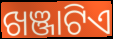
ଖଞ୍ଜାଟିଏ